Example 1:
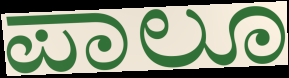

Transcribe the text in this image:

ಪಾಲೂ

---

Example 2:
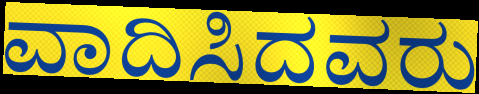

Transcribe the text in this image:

ವಾದಿಸಿದವರು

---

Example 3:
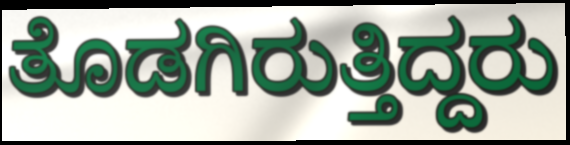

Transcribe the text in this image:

ತೊಡಗಿರುತ್ತಿದ್ದರು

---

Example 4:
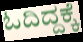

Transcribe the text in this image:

ಓದಿದ್ದಕ್ಕೆ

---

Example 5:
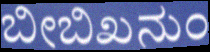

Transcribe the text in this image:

ಬೀಬಿಖನುಂ